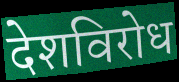
देशविरोध